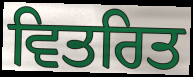
ਵਿਤਰਿਤ